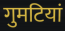
गुमटियां